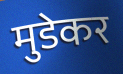
मुडेकर